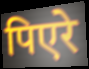
पिएरे